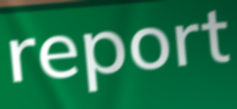
report